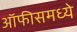
ऑफीसमध्ये